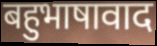
बहुभाषावाद